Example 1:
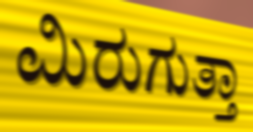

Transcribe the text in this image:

ಮಿರುಗುತ್ತಾ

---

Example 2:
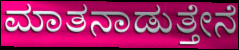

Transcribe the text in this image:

ಮಾತನಾಡುತ್ತೇನೆ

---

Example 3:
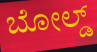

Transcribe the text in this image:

ಬೋಲ್ಡ್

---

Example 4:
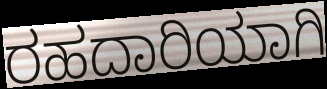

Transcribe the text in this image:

ರಹದಾರಿಯಾಗಿ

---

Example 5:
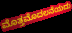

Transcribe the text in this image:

ಮೊತ್ತಮೊದಲನೆಯದು